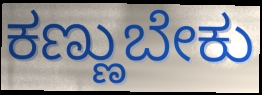
ಕಣ್ಣುಬೇಕು